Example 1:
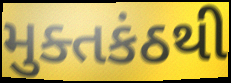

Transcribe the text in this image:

મુક્તકંઠથી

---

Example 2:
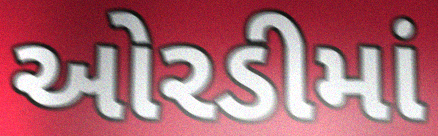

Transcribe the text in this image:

ઓરડીમાં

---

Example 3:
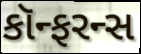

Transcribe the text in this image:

કૉન્ફરન્સ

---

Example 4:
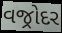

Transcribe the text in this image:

વજ્રોદર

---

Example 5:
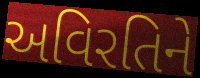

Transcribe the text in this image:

અવિરતિને